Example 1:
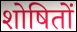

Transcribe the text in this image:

शोषितों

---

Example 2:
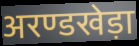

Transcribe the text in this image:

अरण्डखेड़ा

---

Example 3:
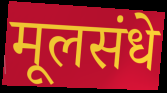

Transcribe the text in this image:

मूलसंधे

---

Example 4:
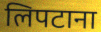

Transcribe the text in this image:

लिपटाना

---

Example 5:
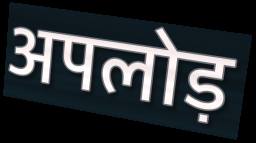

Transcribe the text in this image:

अपलोड़